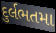
દુર્લભતમા